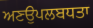
ਅਣਉਪਲਬਧਤਾ